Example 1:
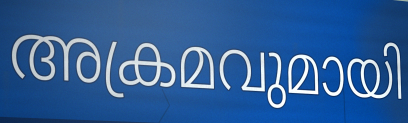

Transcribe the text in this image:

അക്രമവുമായി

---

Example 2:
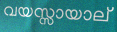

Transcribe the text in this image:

വയസ്സായാല്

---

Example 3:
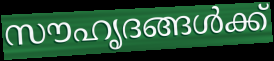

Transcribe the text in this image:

സൗഹൃദങ്ങൾക്ക്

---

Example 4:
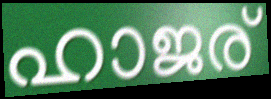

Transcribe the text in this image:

ഹാജര്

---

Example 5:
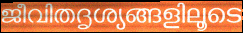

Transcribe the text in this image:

ജീവിതദൃശ്യങ്ങളിലൂടെ